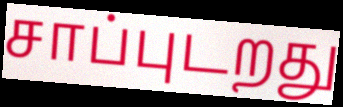
சாப்புடறது